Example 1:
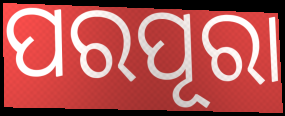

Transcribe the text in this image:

ପରପୂରା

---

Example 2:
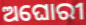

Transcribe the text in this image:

ଅଘୋରୀ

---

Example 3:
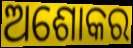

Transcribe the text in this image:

ଅଶୋକର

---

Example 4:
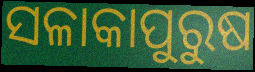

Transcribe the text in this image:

ସଳାକାପୁରୁଷ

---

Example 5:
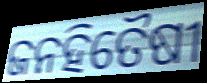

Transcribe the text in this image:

ଜନହିତୈଷୀ